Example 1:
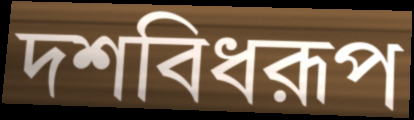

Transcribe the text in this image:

দশবিধরূপ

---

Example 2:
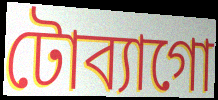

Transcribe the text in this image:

টোব্যাগো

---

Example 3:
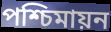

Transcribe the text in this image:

পশ্চিমায়ন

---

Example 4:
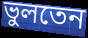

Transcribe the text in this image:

ভুলতেন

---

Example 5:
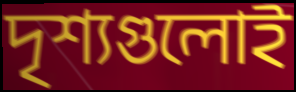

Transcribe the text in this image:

দৃশ্যগুলোই